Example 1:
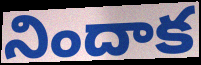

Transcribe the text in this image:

నిందాక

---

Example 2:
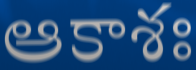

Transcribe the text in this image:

ఆకాశః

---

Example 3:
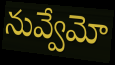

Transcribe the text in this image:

నువ్వేమో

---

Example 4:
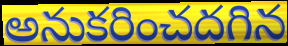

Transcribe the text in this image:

అనుకరించదగిన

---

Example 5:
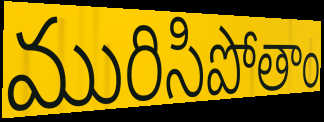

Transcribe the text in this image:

మురిసిపోతాం